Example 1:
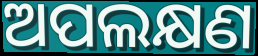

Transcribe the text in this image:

ଅପଲକ୍ଷଣ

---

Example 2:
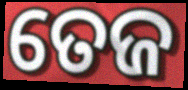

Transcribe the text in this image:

ତେଜ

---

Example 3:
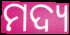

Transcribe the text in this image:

ମଦ୍ଯ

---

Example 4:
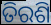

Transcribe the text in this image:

ତିରଶି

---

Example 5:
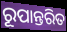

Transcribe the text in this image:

ରୂପାନ୍ତରିତ